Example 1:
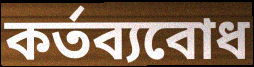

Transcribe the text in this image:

কর্তব্যবোধ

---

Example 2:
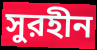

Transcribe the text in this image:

সুরহীন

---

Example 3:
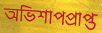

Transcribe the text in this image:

অভিশাপপ্রাপ্ত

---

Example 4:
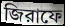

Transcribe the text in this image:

জিরাফে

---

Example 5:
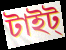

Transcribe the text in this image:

টাইট্